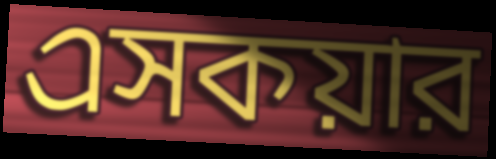
এসকয়ার